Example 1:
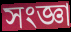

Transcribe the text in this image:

সংজ্ঞা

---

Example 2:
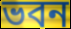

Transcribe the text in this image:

ভবন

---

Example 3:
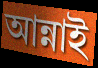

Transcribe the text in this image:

আন্নাই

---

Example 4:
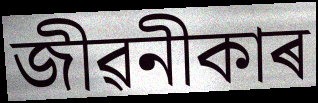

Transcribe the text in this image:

জীৱনীকাৰ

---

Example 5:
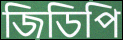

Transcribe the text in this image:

জিডিপি